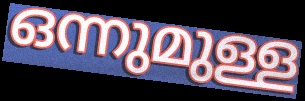
ഒന്നുമുള്ള